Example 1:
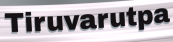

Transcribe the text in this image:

Tiruvarutpa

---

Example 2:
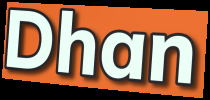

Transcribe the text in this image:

Dhan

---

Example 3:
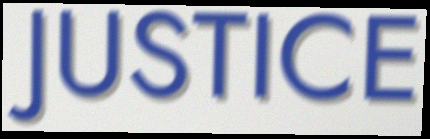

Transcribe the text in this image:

JUSTICE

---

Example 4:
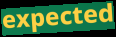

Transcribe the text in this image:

expected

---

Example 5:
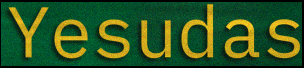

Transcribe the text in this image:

Yesudas